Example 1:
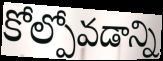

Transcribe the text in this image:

కోల్పోవడాన్ని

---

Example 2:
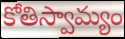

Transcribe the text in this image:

కోతిస్వామ్యం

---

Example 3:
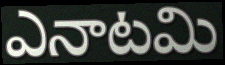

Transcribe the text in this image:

ఎనాటమి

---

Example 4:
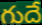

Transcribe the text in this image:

గుదే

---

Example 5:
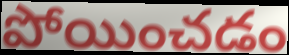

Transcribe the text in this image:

పోయించడం